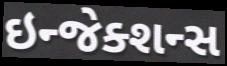
ઇન્જેક્શન્સ